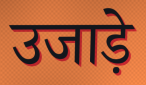
उजाड़े